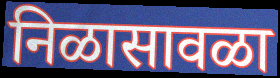
निळासावळा